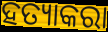
ହତ୍ୟାକରା